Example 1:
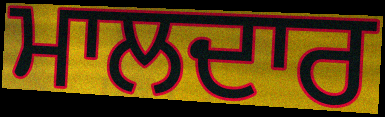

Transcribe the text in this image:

ਮਾਲਦਾਰ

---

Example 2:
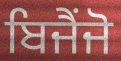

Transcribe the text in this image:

ਬਿਜੈਂਜੋ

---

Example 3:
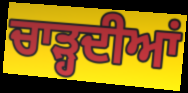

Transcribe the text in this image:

ਚਾੜ੍ਹਦੀਆਂ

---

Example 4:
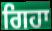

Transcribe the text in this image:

ਗਿਹਾ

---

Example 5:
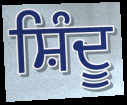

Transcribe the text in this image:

ਸ਼ਿੰਦੂ